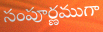
సంపూర్ణముగా